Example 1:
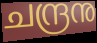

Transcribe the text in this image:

ചന്ദ്രനു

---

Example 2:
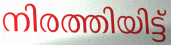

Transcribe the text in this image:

നിരത്തിയിട്ട്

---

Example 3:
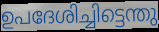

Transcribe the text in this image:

ഉപദേശിച്ചിട്ടെന്തു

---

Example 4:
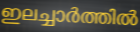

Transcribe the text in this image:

ഇലച്ചാർത്തിൽ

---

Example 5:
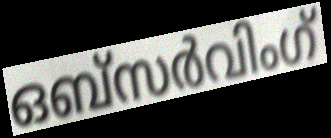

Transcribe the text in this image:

ഒബ്സർവിംഗ്